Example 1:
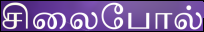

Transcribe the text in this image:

சிலைபோல்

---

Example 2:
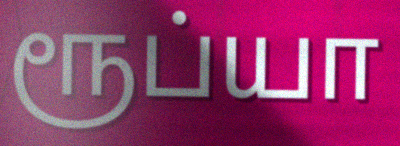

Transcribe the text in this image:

ரூப்யா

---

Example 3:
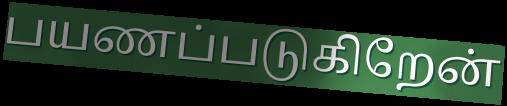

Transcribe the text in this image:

பயணப்படுகிறேன்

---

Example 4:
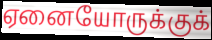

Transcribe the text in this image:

ஏனையோருக்குக்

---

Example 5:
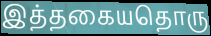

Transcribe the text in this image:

இத்தகையதொரு